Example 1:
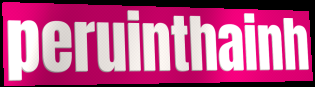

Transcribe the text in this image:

peruinthainh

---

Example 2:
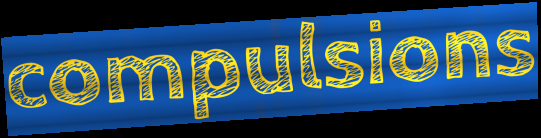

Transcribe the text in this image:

compulsions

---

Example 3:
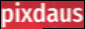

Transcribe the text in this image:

pixdaus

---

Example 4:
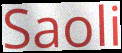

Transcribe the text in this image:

Saoli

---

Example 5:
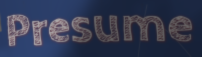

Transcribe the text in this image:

Presume